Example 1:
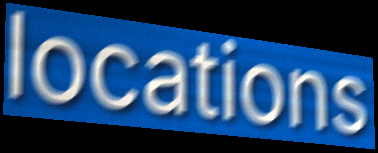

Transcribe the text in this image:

locations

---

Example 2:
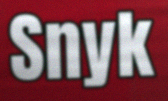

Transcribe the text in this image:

Snyk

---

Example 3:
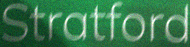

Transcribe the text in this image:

Stratford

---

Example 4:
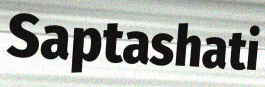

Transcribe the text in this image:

Saptashati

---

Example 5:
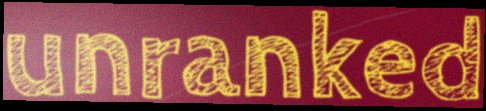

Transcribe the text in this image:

unranked